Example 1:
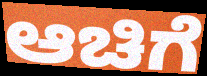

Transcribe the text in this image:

ಆಚಿಗೆ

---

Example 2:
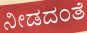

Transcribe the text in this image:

ನೀಡದಂತೆ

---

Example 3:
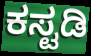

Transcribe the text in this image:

ಕಸ್ಟಡಿ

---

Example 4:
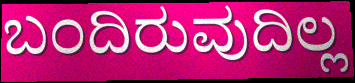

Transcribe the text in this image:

ಬಂದಿರುವುದಿಲ್ಲ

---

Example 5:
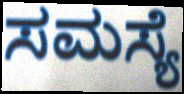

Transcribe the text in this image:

ಸಮಸ್ಯೆ